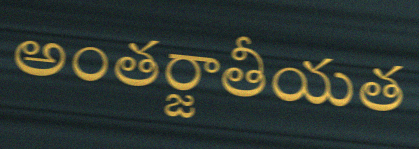
అంతర్జాతీయత